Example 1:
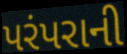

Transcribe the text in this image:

પરંપરાની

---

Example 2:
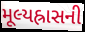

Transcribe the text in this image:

મૂલ્યહ્રાસની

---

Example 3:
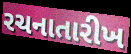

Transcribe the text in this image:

રચનાતારીખ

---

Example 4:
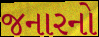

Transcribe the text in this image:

જનારનો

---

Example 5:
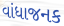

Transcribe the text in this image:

વાંધાજનક